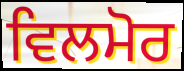
ਵਿਲਮੋਰ